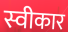
स्‍वीकार